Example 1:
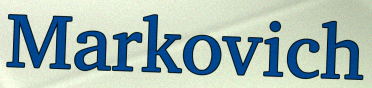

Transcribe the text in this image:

Markovich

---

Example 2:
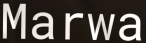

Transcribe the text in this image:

Marwa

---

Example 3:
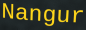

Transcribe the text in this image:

Nangur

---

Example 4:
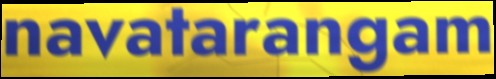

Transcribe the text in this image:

navatarangam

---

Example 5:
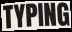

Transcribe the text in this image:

TYPING